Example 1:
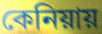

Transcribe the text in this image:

কেনিয়ায়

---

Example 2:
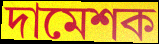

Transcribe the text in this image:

দামেশক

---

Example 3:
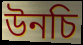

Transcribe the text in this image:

উনচি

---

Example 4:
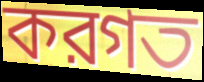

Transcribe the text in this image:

করগত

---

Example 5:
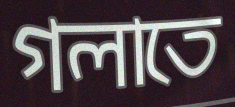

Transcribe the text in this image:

গলাতে